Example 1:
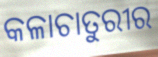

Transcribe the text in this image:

କଳାଚାତୁରୀର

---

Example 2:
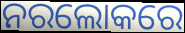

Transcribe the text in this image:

ନରଲୋକରେ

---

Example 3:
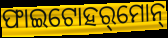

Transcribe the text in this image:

ଫାଇଟୋହର୍‌ମୋନ୍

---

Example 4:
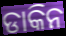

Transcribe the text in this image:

ଡାକିନ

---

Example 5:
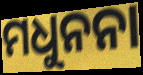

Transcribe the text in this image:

ମଧୁନନା